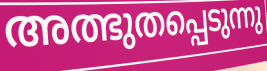
അത്ഭുതപ്പെടുന്നു